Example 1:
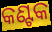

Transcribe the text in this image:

କଣ୍ଟକ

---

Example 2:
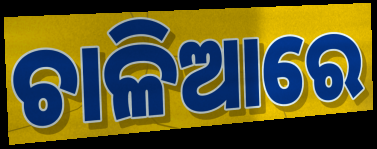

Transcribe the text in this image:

ଚାଳିଆରେ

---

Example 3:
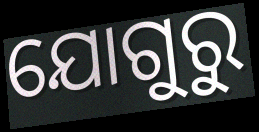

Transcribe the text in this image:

ଯୋଗୁରୁ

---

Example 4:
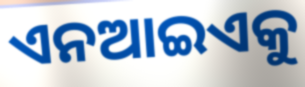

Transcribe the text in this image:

ଏନଆଇଏକୁ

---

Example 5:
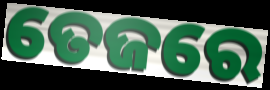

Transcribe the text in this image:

ତେଜରେ